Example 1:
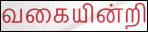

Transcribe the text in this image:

வகையின்றி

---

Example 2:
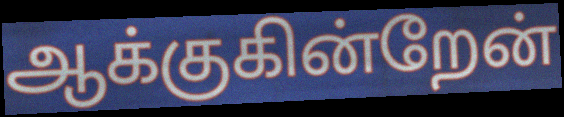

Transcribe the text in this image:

ஆக்குகின்றேன்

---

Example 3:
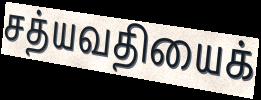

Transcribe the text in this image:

சத்யவதியைக்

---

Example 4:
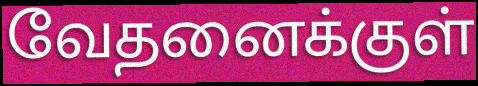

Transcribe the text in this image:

வேதனைக்குள்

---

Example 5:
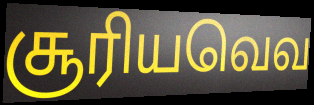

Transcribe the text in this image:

சூரியவெவ